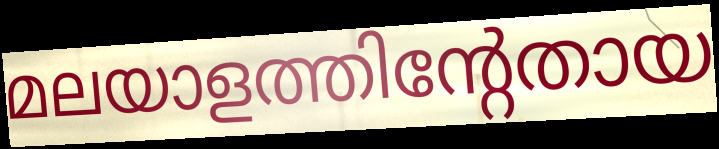
മലയാളത്തിന്റേതായ